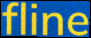
fline